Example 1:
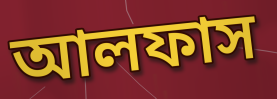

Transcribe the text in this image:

আলফাস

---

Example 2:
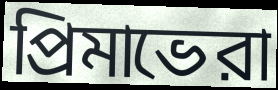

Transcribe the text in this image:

প্রিমাভেরা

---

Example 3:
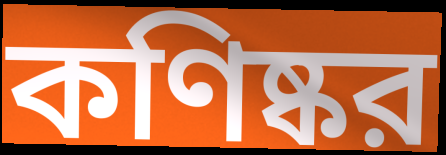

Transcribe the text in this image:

কণিষ্কর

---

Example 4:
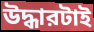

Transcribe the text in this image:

উদ্ধারটাই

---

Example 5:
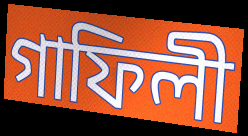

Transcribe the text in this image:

গাফিলী